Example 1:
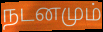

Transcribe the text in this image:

நடனமும்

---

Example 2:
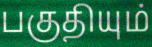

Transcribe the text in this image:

பகுதியும்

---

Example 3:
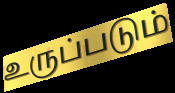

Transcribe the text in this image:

உருப்படும்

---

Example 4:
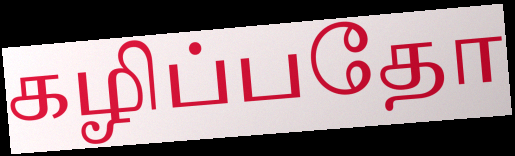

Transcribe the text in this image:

கழிப்பதோ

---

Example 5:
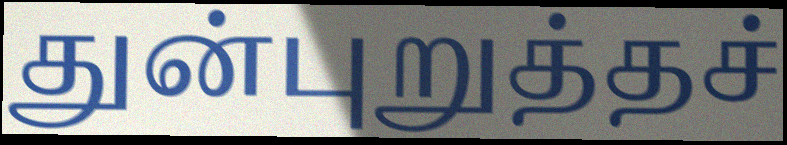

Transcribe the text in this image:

துன்புறுத்தச்